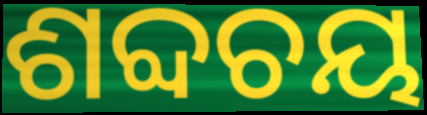
ଶବ୍ଦଚୟ